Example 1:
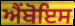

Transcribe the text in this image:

ਐਂਬੋਇਸ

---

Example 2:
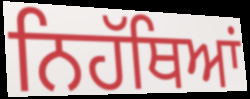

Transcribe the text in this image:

ਨਿਹੱਥਿਆਂ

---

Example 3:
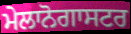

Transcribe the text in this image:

ਮੇਲਾਨੋਗਾਸਟਰ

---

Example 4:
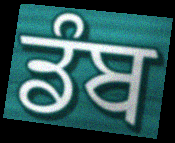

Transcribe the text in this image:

ਡੰਬ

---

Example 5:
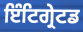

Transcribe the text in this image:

ਇੰਟਿਗ੍ਰੇਟਡ